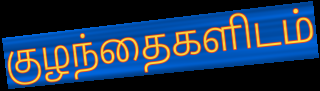
குழந்தைகளிடம்